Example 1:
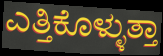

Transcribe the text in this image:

ಎತ್ತಿಕೊಳ್ಳುತ್ತಾ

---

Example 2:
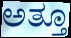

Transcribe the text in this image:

ಅತ್ತೂ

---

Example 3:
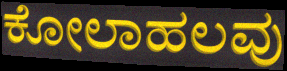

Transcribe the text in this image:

ಕೋಲಾಹಲವು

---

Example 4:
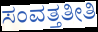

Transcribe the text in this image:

ಸಂವತ್ತತೀತಿ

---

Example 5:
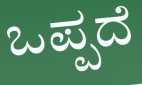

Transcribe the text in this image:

ಒಪ್ಪದೆ